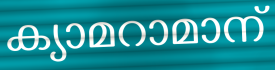
ക്യാമറാമാന്